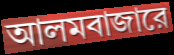
আলমবাজারে